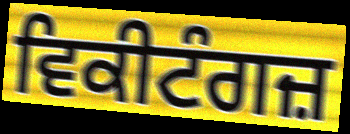
ਵਿਕੀਟੰਗਜ਼